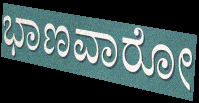
ಭಾಣವಾರೋ